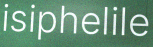
isiphelile